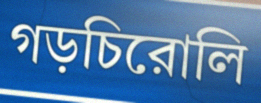
গড়চিরোলি